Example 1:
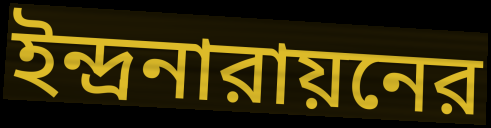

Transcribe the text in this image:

ইন্দ্রনারায়নের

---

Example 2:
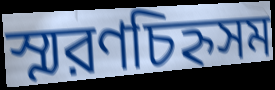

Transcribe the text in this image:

স্মরণচিহ্নসম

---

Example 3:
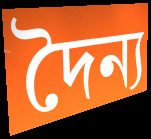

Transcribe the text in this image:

দৈন্য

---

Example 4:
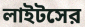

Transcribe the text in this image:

লাইটসের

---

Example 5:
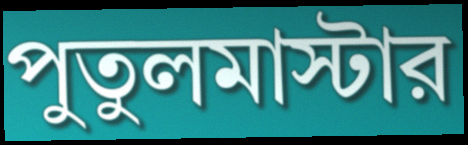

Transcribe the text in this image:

পুতুলমাস্টার